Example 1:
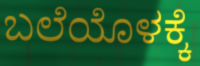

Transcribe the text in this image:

ಬಲೆಯೊಳಕ್ಕೆ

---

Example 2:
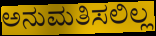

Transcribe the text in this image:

ಅನುಮತಿಸಲಿಲ್ಲ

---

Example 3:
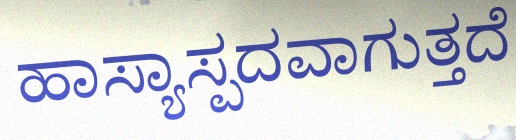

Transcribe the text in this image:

ಹಾಸ್ಯಾಸ್ಪದವಾಗುತ್ತದೆ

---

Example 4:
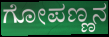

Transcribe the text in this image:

ಗೋಪಣ್ಣನ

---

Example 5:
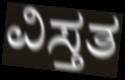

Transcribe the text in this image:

ವಿಸ್ತತ